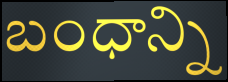
బంధాన్ని